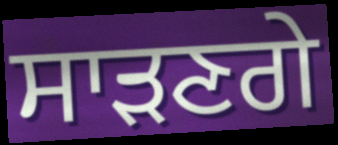
ਸਾੜਣਗੇ